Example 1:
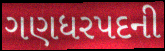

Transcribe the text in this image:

ગણધરપદની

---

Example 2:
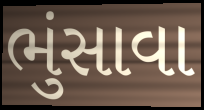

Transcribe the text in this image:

ભુંસાવા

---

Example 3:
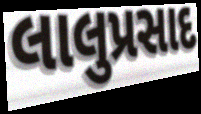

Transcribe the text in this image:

લાલુપ્રસાદ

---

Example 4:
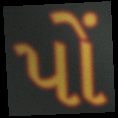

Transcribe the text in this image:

પોં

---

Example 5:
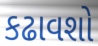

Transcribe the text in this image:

કઢાવશો